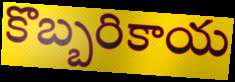
కొబ్బరికాయ